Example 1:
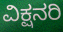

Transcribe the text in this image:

ವಿಕ್ಷನರಿ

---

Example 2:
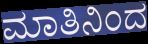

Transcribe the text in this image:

ಮಾತಿನಿಂದ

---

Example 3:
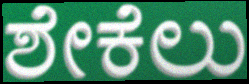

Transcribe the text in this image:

ಶೇಕೆಲು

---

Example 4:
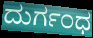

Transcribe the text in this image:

ದುರ್ಗಂಧ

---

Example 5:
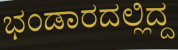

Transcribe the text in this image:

ಭಂಡಾರದಲ್ಲಿದ್ದ